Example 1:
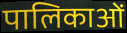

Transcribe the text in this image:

पालिकाओं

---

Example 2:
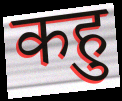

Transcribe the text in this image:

कहु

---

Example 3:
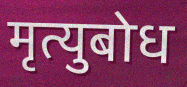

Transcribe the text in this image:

मृत्युबोध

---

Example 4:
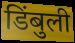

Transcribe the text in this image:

डिंबुली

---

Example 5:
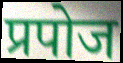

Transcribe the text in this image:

प्रपोज